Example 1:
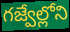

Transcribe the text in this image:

గజ్వేల్లోని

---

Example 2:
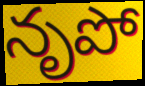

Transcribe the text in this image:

నృపో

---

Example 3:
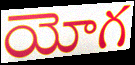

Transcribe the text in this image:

యోగ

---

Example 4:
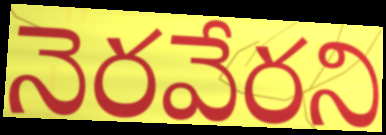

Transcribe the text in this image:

నెరవేరని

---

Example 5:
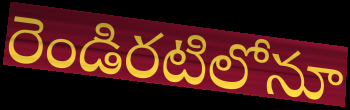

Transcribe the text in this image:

రెండిరటిలోనూ